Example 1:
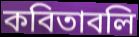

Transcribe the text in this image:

কবিতাবলি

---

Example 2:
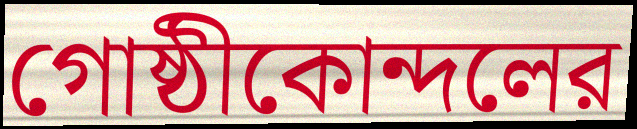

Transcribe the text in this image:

গোষ্ঠীকোন্দলের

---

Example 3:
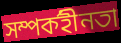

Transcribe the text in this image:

সম্পর্কহীনতা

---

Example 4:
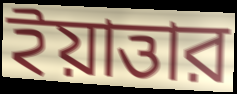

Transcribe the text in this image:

ইয়াত্তার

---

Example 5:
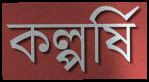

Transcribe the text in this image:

কল্পর্ষি